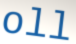
oll